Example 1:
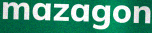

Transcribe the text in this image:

mazagon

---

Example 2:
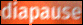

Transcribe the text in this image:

diapause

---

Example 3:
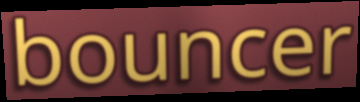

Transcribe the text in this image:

bouncer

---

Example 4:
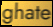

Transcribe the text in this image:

ghate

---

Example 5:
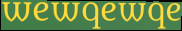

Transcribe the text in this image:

wewqewqe